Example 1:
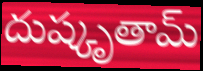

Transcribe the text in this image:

దుష్కృతామ్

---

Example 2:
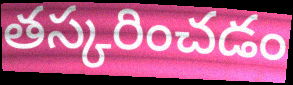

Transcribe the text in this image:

తస్కరించడం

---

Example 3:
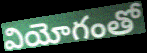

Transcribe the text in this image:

వియోగంతో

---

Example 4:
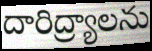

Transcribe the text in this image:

దారిద్ర్యాలను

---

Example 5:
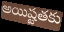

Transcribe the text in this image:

అయిష్టతకు